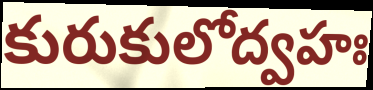
కురుకులోద్వహః